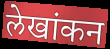
लेखांकन